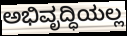
ಅಭಿವೃದ್ಧಿಯಲ್ಲ